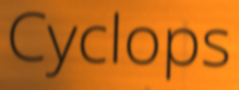
Cyclops